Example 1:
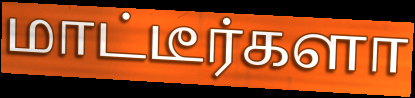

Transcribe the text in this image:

மாட்டீர்களா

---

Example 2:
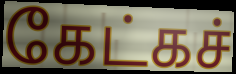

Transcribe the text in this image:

கேட்கச்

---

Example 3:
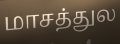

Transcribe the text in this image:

மாசத்துல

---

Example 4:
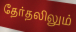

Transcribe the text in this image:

தேர்தலிலும்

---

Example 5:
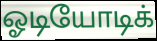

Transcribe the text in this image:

ஓடியோடிக்